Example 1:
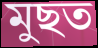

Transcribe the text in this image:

মুছত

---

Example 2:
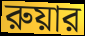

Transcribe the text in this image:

রুয়ার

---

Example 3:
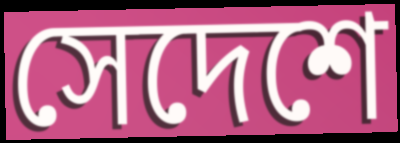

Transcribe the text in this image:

সেদেশে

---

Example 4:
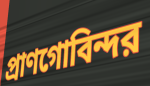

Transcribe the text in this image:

প্রাণগোবিন্দর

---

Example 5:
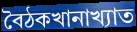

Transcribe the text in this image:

বৈঠকখানাখ্যাত